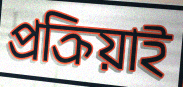
প্ৰক্ৰিয়াই